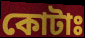
কোটাঃ